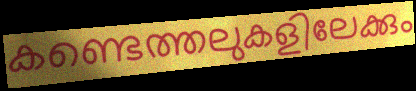
കണ്ടെത്തലുകളിലേക്കും